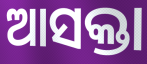
ଆସକ୍ତା